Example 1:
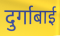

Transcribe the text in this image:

दुर्गाबाई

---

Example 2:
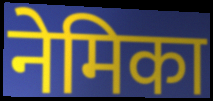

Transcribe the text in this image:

नेमिका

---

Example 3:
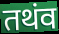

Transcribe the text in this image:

तथंव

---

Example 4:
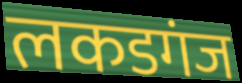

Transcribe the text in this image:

लकडगंज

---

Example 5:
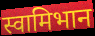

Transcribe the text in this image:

स्वामिभान